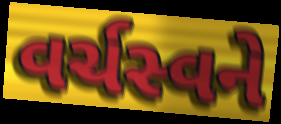
વર્ચસ્વને